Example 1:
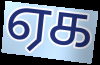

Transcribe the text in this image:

ஏக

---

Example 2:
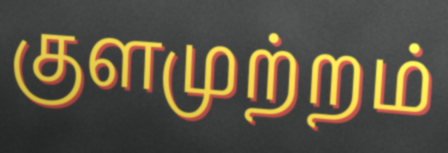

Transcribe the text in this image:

குளமுற்றம்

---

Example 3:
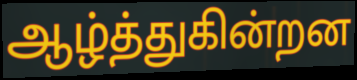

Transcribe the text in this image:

ஆழ்த்துகின்றன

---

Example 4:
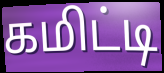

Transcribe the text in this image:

கமிட்டி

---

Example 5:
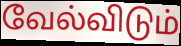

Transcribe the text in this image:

வேல்விடும்